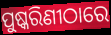
ପୁଷ୍କରିଣୀଠାରେ